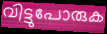
വിട്ടുപോരുക